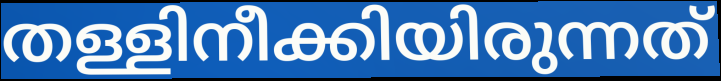
തള്ളിനീക്കിയിരുന്നത്